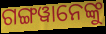
ଗଙ୍ଗୱାନେଙ୍କୁ